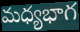
మధ్యభాగ